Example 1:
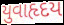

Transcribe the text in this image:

યુવાહૃદય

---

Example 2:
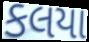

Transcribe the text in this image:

કલયા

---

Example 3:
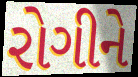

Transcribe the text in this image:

રોગીને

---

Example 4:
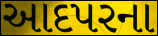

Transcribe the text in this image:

આદપરના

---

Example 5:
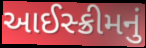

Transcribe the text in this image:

આઈસ્ક્રીમનું